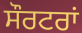
ਸੌਰਟਰਾਂ